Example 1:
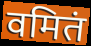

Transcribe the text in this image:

वमितं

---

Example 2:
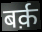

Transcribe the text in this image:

बर्क़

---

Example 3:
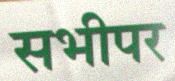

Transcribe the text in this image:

सभीपर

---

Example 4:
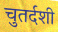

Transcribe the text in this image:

चुतर्दशी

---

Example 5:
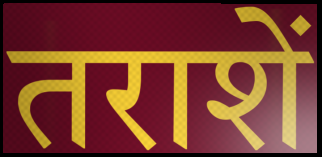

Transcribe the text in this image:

तराशें